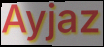
Ayjaz